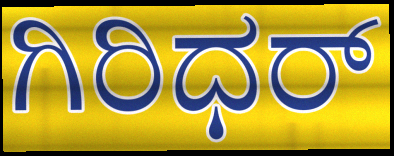
ಗಿರಿಧರ್